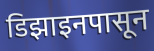
डिझाइनपासून